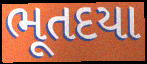
ભૂતદયા